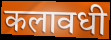
कलावधी